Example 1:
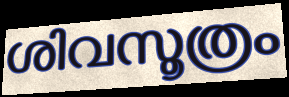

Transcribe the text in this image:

ശിവസൂത്രം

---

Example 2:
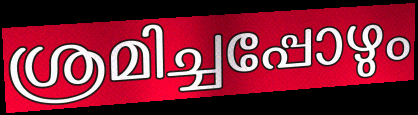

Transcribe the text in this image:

ശ്രമിച്ചപ്പോഴും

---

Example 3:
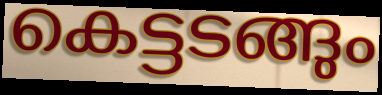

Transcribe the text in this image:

കെട്ടടങ്ങും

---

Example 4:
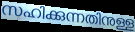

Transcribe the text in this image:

സഹിക്കുന്നതിനുള്ള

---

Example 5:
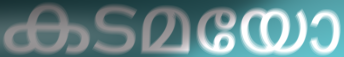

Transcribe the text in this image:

കടമയോ